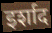
इर्शाद